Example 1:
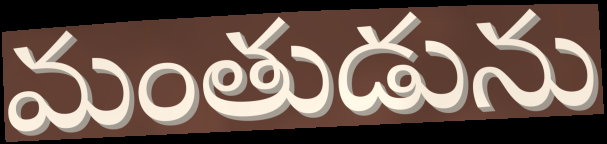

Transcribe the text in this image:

మంతుడును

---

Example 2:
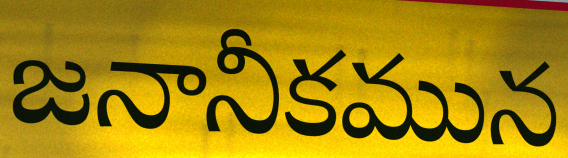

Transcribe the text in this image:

జనానీకమున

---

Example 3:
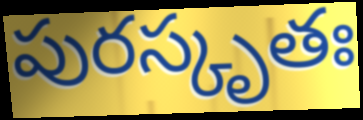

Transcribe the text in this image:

పురస్కృతః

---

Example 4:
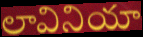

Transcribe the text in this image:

లావినియా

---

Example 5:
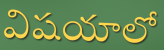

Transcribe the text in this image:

విషయాలో